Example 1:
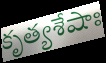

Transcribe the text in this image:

కృత్యశేషాః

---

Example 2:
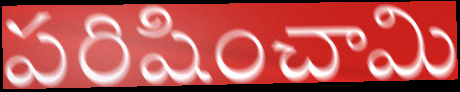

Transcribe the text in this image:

పరిషించామి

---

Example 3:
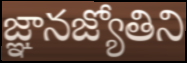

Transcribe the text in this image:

జ్ఞానజ్యోతిని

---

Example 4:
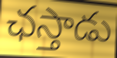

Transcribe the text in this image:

ఛస్తాడు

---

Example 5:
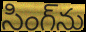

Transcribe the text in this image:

సింగ్‌ను